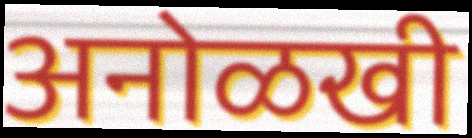
अनोळखी